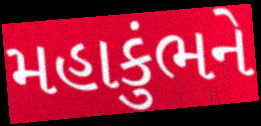
મહાકુંભને